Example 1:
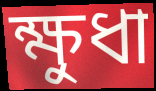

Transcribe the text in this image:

ক্ষুধা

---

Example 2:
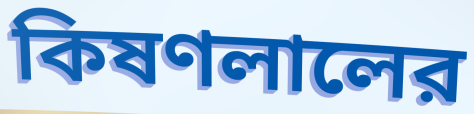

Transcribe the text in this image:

কিষণলালের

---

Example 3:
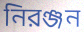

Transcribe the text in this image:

নিরঞ্জন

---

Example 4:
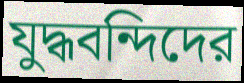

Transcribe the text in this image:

যুদ্ধবন্দিদের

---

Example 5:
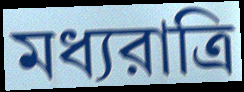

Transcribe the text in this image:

মধ্যরাত্রি